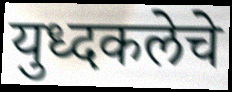
युध्दकलेचे